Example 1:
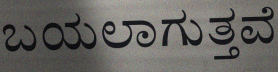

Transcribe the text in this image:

ಬಯಲಾಗುತ್ತವೆ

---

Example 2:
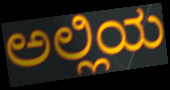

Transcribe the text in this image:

ಅಲ್ಲಿಯ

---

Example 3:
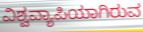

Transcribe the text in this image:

ವಿಶ್ವವ್ಯಾಪಿಯಾಗಿರುವ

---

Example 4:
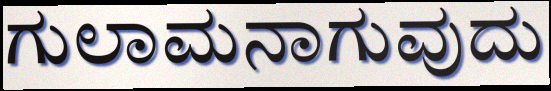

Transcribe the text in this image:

ಗುಲಾಮನಾಗುವುದು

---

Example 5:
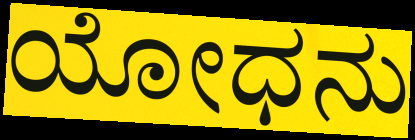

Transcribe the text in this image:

ಯೋಧನು